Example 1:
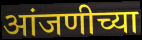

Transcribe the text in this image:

आंजणीच्या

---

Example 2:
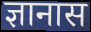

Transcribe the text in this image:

ज्ञानास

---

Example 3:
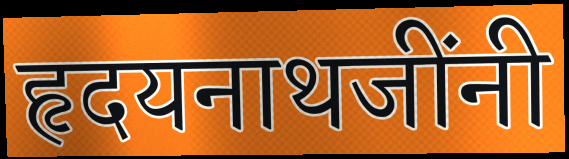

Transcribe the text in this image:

हृदयनाथजींनी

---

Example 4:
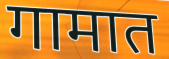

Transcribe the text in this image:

गामात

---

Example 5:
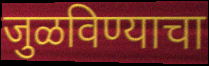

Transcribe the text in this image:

जुळविण्याचा